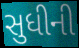
સુધીની